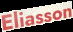
Eliasson